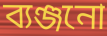
ব্যঞ্জনো